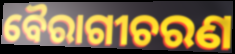
ବୈରାଗୀଚରଣ